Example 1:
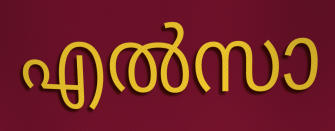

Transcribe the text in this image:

എൽസാ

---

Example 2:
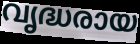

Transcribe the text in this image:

വൃദ്ധരായ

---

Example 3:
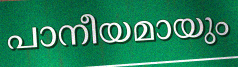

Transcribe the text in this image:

പാനീയമായും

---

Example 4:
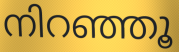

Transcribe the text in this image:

നിറഞ്ഞൂ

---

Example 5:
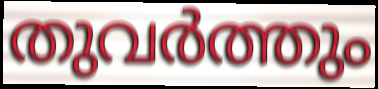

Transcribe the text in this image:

തുവർത്തും